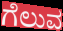
ಗೆಲುವ